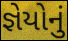
જ્ઞેયોનું